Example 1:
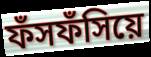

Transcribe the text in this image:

ফঁসফঁসিয়ে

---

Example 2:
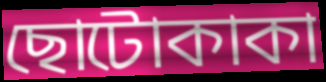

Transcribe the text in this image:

ছোটোকাকা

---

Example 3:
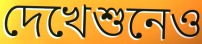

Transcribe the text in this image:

দেখেশুনেও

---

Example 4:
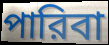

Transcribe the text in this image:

পারিবা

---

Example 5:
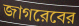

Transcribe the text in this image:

জাগরেবের